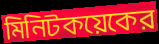
মিনিটকয়েকের